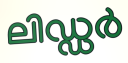
ലിഡ്ഡർ